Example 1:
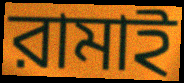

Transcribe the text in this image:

রামাই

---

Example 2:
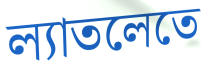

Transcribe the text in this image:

ল্যাতলেতে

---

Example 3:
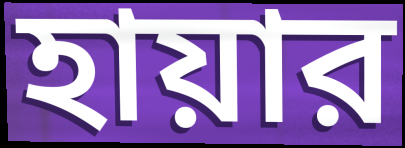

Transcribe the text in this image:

হায়ার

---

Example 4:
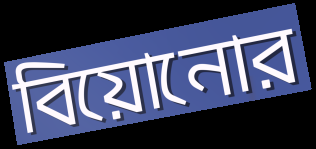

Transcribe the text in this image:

বিয়োনোর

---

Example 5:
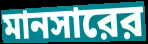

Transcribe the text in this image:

মানসারের